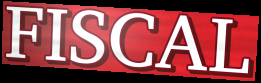
FISCAL